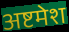
अष्टमेश